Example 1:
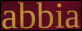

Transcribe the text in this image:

abbia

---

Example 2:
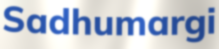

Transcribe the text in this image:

Sadhumargi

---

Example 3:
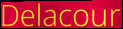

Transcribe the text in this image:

Delacour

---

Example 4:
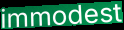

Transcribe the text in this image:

immodest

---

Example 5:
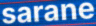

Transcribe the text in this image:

sarane